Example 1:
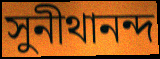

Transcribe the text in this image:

সুনীথানন্দ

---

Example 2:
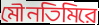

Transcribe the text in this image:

মৌনতিমিরে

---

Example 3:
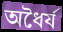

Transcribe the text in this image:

অধৈর্য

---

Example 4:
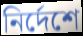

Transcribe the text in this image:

নির্দেশে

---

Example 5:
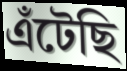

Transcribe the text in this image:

এঁটেছি